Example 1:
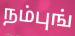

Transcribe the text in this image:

நம்புங்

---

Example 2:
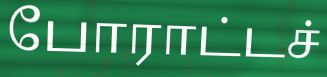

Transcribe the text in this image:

போராட்டச்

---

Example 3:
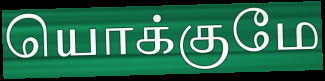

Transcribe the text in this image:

யொக்குமே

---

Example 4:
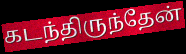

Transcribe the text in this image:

கடந்திருந்தேன்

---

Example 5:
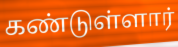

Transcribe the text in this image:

கண்டுள்ளார்